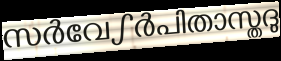
സർവേഽർപിതാസ്തദു